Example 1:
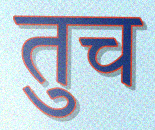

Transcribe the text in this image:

तुच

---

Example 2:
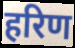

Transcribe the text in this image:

हरिण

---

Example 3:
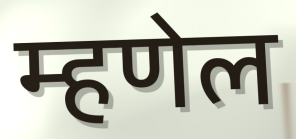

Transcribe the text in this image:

म्हणेल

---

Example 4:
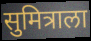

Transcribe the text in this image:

सुमित्राला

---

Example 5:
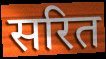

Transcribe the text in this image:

सरित